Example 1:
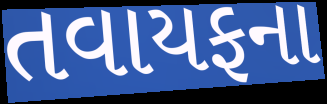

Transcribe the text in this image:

તવાયફના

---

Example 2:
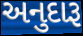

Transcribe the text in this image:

અનુદારૂ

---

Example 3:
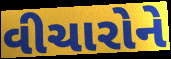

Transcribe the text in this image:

વીચારોને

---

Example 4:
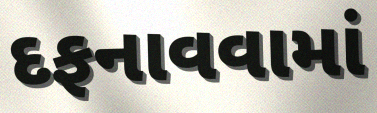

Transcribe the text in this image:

દફનાવવામાં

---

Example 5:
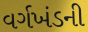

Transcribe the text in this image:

વર્ગખંડની